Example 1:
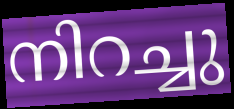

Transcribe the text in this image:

നിറച്ചു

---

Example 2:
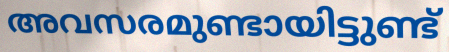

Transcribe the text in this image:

അവസരമുണ്ടായിട്ടുണ്ട്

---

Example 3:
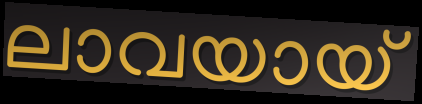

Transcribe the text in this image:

ലാവയായ്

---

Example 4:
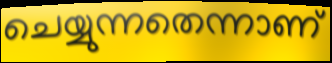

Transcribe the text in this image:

ചെയ്യുന്നതെന്നാണ്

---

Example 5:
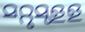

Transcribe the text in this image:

മറ്റുമുളള